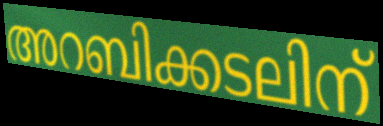
അറബിക്കടലിന്